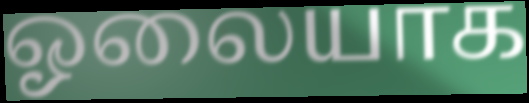
ஓலையாக